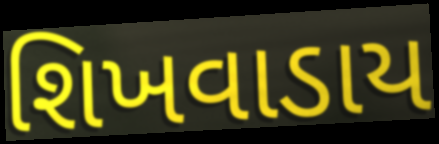
શિખવાડાય